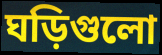
ঘড়িগুলো